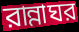
রান্নাঘর